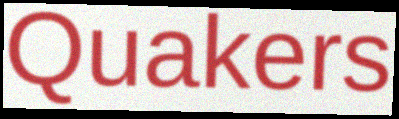
Quakers